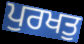
ਪੁਰਖਤੁ